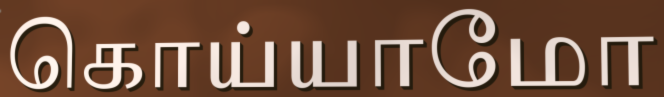
கொய்யாமோ